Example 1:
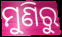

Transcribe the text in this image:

ମୁଣିରୁ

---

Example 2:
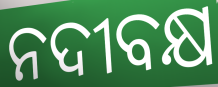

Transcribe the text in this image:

ନଦୀବକ୍ଷ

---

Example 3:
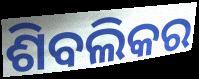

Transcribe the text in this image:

ଶିବଲିକର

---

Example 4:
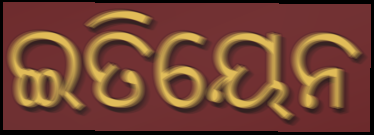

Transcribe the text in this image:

ଇତିୟେନ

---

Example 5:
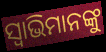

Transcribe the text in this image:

ସ୍ୱାଭିମାନଙ୍କୁ